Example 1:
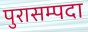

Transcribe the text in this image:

पुरासम्पदा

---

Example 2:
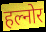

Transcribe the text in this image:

हल्नोर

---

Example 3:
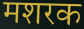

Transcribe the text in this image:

मशरक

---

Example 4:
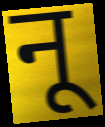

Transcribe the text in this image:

नू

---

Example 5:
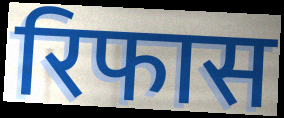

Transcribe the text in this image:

रिफास